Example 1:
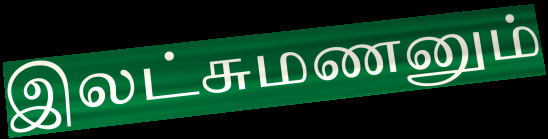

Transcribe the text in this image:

இலட்சுமணனும்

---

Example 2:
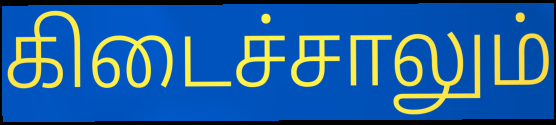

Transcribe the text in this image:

கிடைச்சாலும்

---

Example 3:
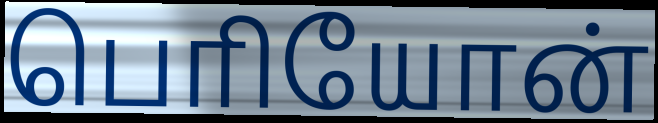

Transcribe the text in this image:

பெரியோன்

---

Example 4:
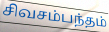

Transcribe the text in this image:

சிவசம்பந்தம்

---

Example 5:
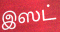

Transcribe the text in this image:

இஸட்